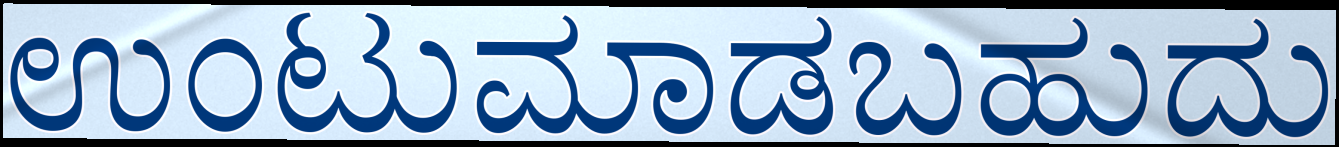
ಉಂಟುಮಾಡಬಹುದು